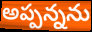
అప్పన్నను